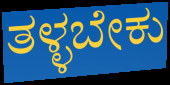
ತಳ್ಳಬೇಕು